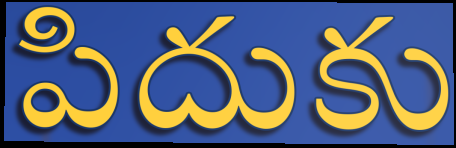
పిదుకు